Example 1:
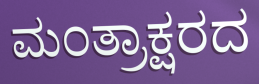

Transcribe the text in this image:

ಮಂತ್ರಾಕ್ಷರದ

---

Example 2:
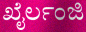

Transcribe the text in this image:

ಖೈರ್ಲಂಜಿ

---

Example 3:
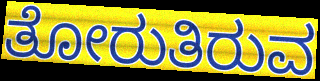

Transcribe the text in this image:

ತೋರುತಿರುವ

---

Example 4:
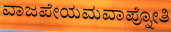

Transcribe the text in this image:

ವಾಜಪೇಯಮವಾಪ್ನೋತಿ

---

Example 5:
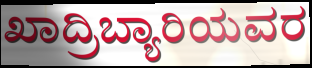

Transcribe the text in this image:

ಖಾದ್ರಿಬ್ಯಾರಿಯವರ